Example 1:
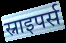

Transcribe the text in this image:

स्नाइपर्स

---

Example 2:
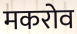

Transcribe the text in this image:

मकरोव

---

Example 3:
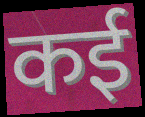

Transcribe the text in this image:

कई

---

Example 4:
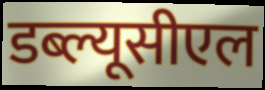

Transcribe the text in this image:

डब्ल्यूसीएल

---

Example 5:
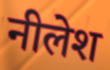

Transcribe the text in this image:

नीलेश